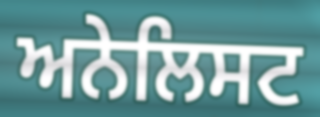
ਅਨੇਲਿਸਟ